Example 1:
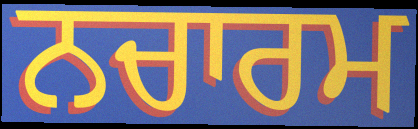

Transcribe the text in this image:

ਨਚਾਰਮ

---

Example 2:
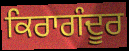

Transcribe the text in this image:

ਕਿਰਾਗੰਦੂਰ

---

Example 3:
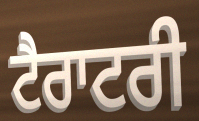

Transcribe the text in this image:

ਟੈਰਾਟਰੀ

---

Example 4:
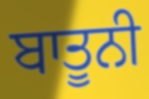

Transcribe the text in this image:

ਬਾਤੂਨੀ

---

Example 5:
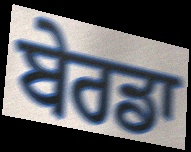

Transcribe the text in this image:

ਬੇਰਡਾ